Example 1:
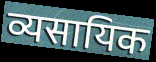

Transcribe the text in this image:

व्यसायिक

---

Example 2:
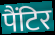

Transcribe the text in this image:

पैंटिर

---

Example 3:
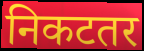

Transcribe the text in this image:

निकटतर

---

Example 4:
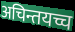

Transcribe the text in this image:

अचिन्तयच्च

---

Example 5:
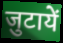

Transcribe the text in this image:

जुटायें